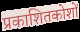
प्रकाशितकोशों